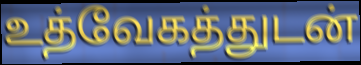
உத்வேகத்துடன்